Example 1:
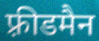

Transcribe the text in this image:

फ़्रीडमैन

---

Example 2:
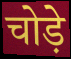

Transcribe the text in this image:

चोड़े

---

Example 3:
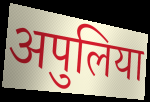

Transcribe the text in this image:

अपुलिया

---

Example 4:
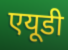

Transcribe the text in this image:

एयूडी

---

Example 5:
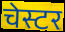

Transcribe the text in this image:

चेस्टर